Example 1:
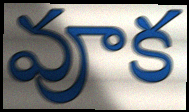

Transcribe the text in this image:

వూక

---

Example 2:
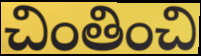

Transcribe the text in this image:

చింతించి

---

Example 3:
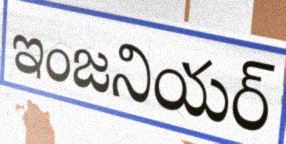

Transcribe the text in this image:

ఇంజనియర్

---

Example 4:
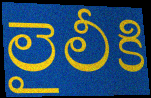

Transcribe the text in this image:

లైలీకి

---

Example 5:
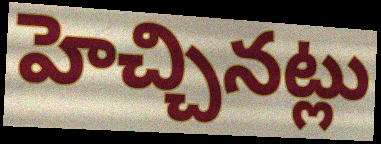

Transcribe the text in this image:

హెచ్చినట్లు